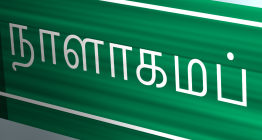
நாளாகமப்